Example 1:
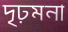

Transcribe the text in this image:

দৃঢ়মনা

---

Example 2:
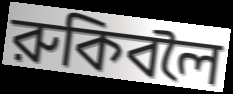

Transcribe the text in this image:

ৰুকিবলৈ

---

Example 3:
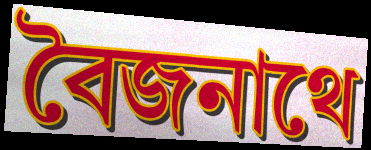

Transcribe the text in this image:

বৈজনাথে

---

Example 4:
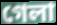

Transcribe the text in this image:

গেলা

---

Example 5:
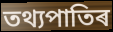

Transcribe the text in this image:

তথ্যপাতিৰ